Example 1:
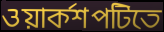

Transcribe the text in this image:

ওয়ার্কশপটিতে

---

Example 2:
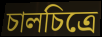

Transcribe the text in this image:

চালচিত্রে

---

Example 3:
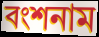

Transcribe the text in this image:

বংশনাম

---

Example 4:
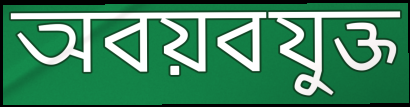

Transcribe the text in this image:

অবয়বযুক্ত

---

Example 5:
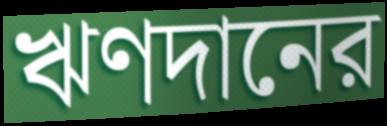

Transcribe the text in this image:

ঋণদানের